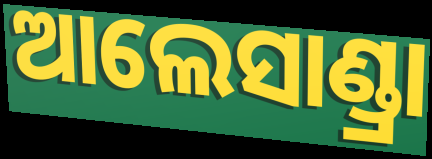
ଆଲେସାଣ୍ଡ୍ରା